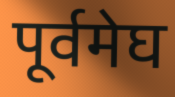
पूर्वमेघ